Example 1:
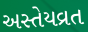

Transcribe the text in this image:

અસ્તેયવ્રત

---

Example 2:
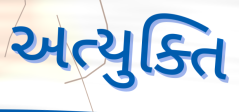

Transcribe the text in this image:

અત્યુક્તિ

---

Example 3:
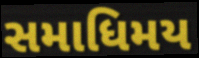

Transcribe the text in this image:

સમાધિમય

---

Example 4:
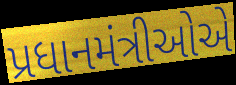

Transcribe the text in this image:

પ્રધાનમંત્રીઓએ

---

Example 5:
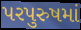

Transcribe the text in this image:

પરપુરુષમાં